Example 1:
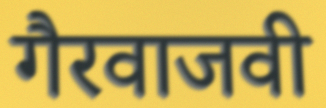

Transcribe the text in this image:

गैरवाजवी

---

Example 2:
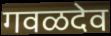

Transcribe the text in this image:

गवळदेव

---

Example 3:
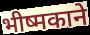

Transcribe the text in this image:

भीष्मकाने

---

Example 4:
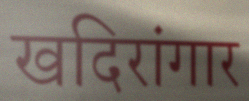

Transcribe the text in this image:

खदिरांगार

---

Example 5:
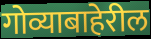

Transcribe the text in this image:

गोव्याबाहेरील